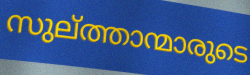
സുല്ത്താന്മാരുടെ